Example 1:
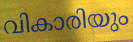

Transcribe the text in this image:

വികാരിയും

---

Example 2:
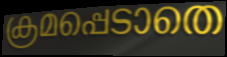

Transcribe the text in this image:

ക്രമപ്പെടാതെ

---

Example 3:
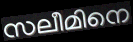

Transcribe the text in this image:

സലീമിനെ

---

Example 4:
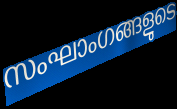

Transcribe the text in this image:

സംഘാംഗങ്ങളുടെ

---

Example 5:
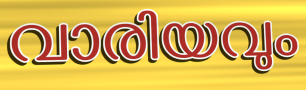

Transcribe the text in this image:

വാരിയവും